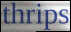
thrips